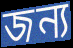
জন্য